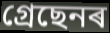
গ্ৰেছেনৰ